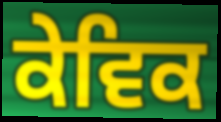
ਕੇਵਿਕ